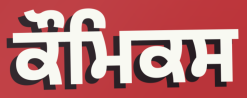
ਕੌਮਿਕਸ